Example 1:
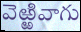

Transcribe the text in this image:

వెఱ్ఱివాగు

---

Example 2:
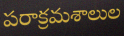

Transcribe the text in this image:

పరాక్రమశాలుల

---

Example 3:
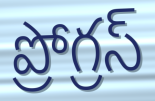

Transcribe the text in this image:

ప్రోగ్రస్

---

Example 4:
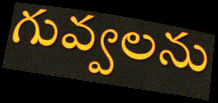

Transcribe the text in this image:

గువ్వలను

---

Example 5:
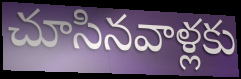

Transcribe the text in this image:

చూసినవాళ్లకు